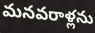
మనవరాళ్లను